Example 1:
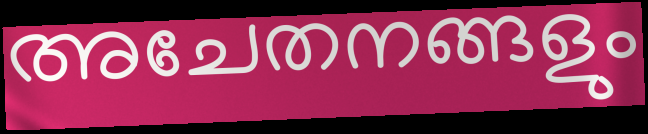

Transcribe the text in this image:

അചേതനങ്ങളും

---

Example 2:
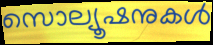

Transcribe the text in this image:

സൊല്യൂഷനുകൾ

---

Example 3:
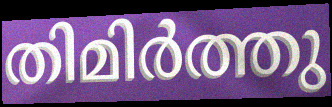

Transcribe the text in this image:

തിമിർത്തു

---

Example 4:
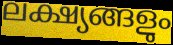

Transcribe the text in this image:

ലക്ഷ്യങ്ങളും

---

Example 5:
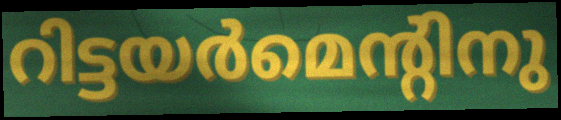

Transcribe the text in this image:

റിട്ടയർമെന്റിനു